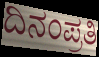
ದಿನಂಪ್ರತಿ